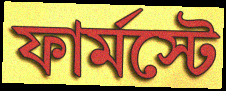
ফার্মস্টে